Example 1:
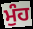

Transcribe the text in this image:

ਮੁੰਹ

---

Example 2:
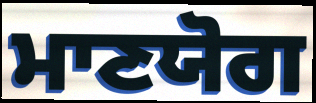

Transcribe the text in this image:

ਮਾਣਯੋਗ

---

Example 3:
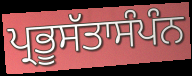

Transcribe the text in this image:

ਪ੍ਰਭੂਸੱਤਾਸੰਪੰਨ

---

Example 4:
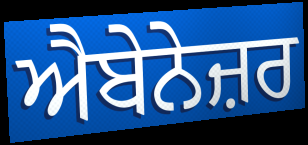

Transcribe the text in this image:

ਐਬੇਨੇਜ਼ਰ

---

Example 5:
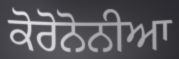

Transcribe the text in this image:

ਕੋਰੋਨੋਨੀਆ